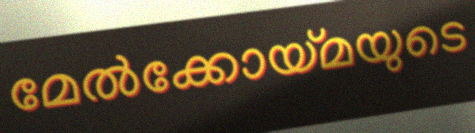
മേൽക്കോയ്മയുടെ